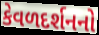
કેવળદર્શનનો